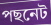
পছনেট